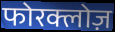
फोरक्लोज़